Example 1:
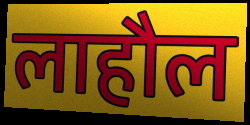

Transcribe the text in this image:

लाहौल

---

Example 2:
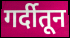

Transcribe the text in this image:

गर्दीतून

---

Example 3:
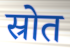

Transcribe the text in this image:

स्रोत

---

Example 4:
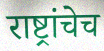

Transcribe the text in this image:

राष्ट्रांचेच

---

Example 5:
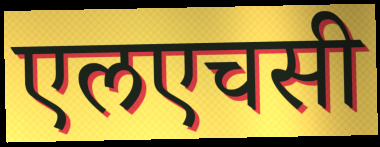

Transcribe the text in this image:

एलएचसी